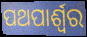
ପଥପାର୍ଶ୍ଵର